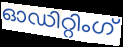
ഓഡിറ്റിംഗ്